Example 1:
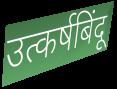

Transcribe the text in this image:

उत्कर्षबिंदू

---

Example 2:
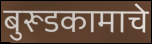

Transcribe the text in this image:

बुरूडकामाचे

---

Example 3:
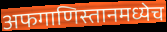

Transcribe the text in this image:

अफगाणिस्तानमध्येच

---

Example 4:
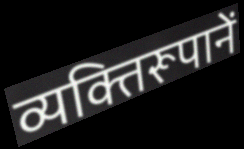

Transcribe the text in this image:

व्यक्तिरूपानें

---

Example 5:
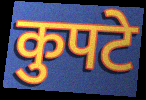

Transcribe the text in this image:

कुपटे